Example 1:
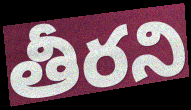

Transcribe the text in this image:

తీరని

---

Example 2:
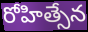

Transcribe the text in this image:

రోహిత్సేన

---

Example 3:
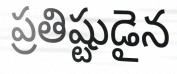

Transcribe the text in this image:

ప్రతిష్టుడైన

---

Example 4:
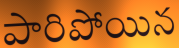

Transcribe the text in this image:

పారిపోయిన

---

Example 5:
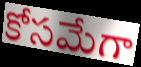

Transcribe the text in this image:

కోసమేగా